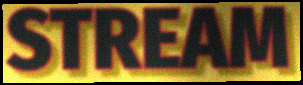
STREAM